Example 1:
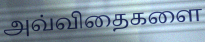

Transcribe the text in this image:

அவ்விதைகளை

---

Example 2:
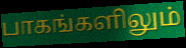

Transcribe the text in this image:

பாகங்களிலும்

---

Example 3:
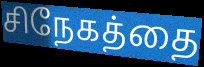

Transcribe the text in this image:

சிநேகத்தை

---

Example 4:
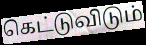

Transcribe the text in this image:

கெட்டுவிடும்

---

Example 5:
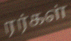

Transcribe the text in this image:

ரர்கள்